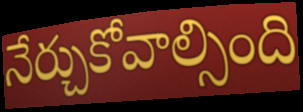
నేర్చుకోవాల్సింది